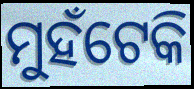
ମୁହଁଟେକି